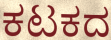
ಕಟಕದ